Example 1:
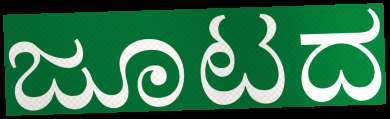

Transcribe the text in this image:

ಜೂಟದ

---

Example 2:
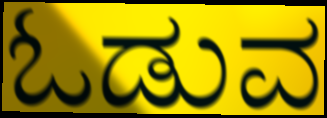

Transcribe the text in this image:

ಓಡುವ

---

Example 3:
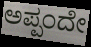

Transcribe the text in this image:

ಅಪ್ಪಂದೇ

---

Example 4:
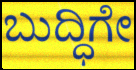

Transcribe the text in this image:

ಬುದ್ಧಿಗೇ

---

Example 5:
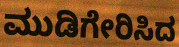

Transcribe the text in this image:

ಮುಡಿಗೇರಿಸಿದ